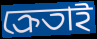
ক্রেতাই